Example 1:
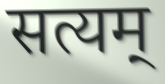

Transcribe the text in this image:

सत्यम्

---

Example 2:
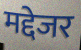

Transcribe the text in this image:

मद्देजर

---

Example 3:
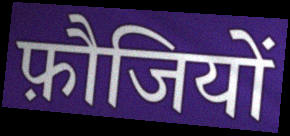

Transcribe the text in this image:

फ़ौजियों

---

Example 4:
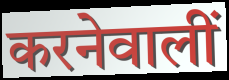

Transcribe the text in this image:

करनेवालीं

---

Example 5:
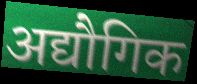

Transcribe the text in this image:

अद्यौगिक